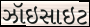
ઝૉઇસાઇટ